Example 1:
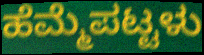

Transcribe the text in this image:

ಹೆಮ್ಮೆಪಟ್ಟಳು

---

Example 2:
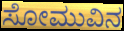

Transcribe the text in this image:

ಸೋಮುವಿನ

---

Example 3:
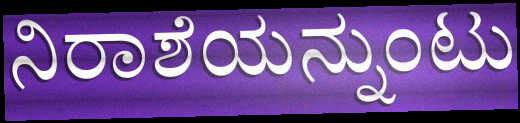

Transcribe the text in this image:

ನಿರಾಶೆಯನ್ನುಂಟು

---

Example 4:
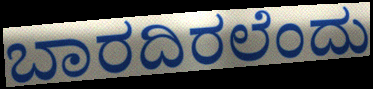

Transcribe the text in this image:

ಬಾರದಿರಲೆಂದು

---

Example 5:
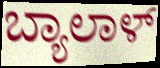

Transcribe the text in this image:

ಬ್ಯಾಲಾಳ್